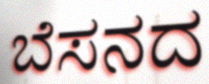
ಬೆಸನದ